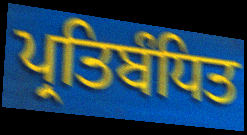
ਪ੍ਰਤਿਬੰਧਿਤ